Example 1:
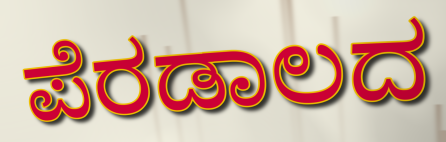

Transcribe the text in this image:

ಪೆರಡಾಲದ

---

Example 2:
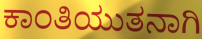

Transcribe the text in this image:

ಕಾಂತಿಯುತನಾಗಿ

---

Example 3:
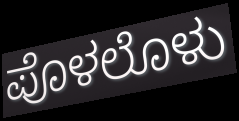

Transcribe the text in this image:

ಪೊಳಲೊಳು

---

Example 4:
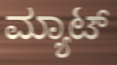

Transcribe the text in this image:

ಮ್ಯಾಟ್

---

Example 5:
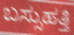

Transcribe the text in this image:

ಬಸ್ಸುಹತ್ತಿ